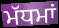
ਮੱਧਮਾਂ